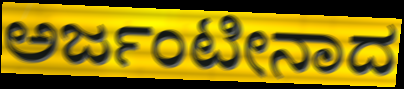
ಅರ್ಜಂಟೀನಾದ